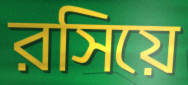
রসিয়ে